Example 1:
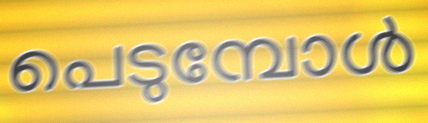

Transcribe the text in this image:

പെടുമ്പോൾ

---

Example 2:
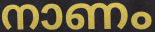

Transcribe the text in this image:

നാണം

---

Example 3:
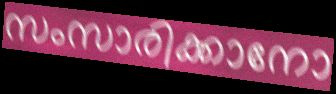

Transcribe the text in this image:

സംസാരിക്കാനോ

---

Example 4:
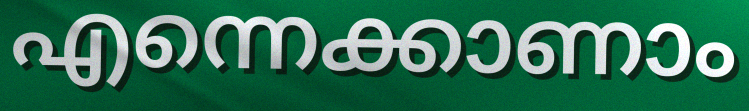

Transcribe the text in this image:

എന്നെക്കാണാം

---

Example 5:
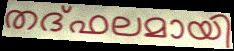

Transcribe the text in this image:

തദ്ഫലമായി